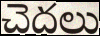
చెదలు